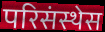
परिसंस्थेस